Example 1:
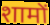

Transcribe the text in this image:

शामों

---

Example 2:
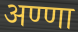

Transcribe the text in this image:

अण्णा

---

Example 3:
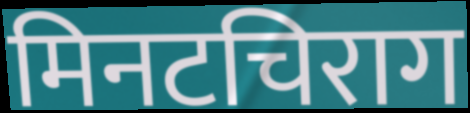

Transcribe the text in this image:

मिनटचिराग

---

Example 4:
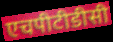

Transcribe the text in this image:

एचपीटीडीसी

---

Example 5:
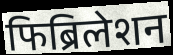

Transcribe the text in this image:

फिब्रिलेशन